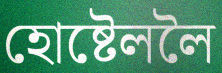
হোষ্টেললৈ